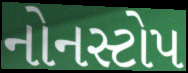
નોનસ્ટોપ